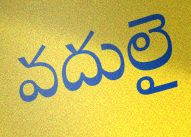
వదులై